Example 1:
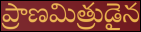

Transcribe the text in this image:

ప్రాణమిత్రుడైన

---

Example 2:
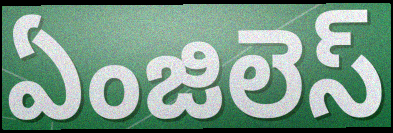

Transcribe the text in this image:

ఏంజిలెస్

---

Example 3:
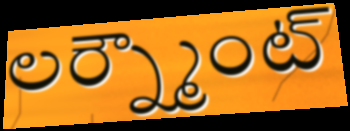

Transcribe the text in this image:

లర్న్మౌంట్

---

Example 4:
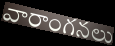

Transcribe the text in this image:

వారాంగనలు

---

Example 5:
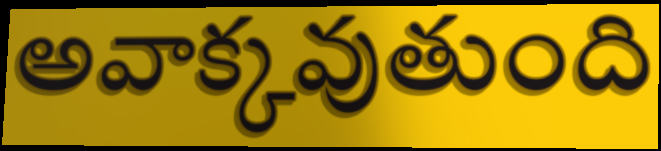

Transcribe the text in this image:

అవాక్కవుతుంది